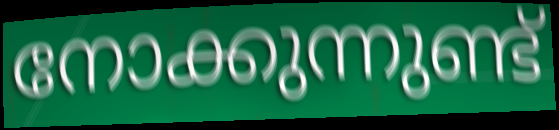
നോക്കുന്നുണ്ട്